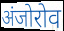
अंजोरोव